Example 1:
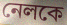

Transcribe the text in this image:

নেলকে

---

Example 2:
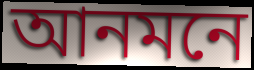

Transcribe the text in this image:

আনমনে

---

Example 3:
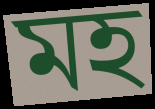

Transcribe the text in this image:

মহ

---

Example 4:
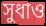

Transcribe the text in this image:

সুধাও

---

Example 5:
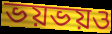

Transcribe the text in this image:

ভয়ভয়ও